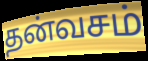
தன்வசம்